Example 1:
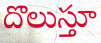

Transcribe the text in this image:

దొలుస్తూ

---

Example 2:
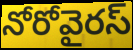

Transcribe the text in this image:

నోరోవైరస్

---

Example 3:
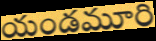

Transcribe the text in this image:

యండమూరి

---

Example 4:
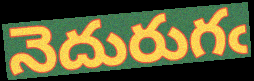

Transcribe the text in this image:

నెదురుగఁ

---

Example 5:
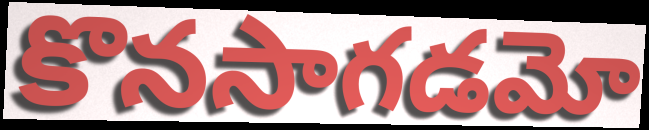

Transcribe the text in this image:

కొనసాగడమో